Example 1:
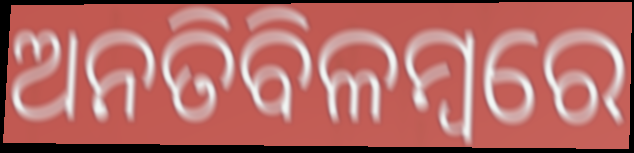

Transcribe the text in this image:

ଅନତିବିଳମ୍ବରେ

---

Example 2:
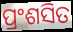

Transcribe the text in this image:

ପ୍ରଂଶସିତ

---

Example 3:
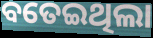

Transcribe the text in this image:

ବତେଇଥିଲା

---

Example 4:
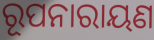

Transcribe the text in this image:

ରୂପନାରାୟଣ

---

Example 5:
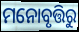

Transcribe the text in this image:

ମନୋବୃତ୍ତିରୁ